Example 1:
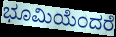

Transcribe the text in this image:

ಭೂಮಿಯೆಂದರೆ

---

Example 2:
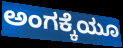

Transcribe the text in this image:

ಅಂಗಕ್ಕೆಯೂ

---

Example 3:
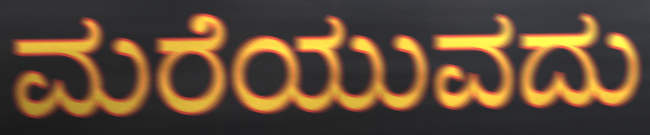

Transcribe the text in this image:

ಮರೆಯುವದು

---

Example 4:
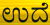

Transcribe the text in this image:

ಉದೆ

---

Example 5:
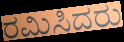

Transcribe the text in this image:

ರಮಿಸಿದರು